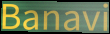
Banavi